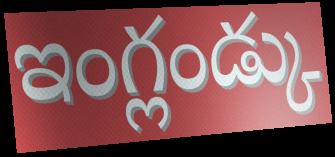
ఇంగ్లండ్కు